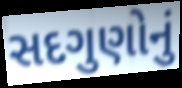
સદગુણોનું